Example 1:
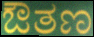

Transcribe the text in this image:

ಔತಣ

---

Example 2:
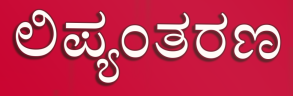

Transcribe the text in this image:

ಲಿಪ್ಯಂತರಣ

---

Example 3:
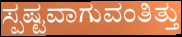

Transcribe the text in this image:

ಸ್ಪಷ್ಟವಾಗುವಂತಿತ್ತು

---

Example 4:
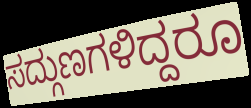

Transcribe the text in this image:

ಸದ್ಗುಣಗಳಿದ್ದರೂ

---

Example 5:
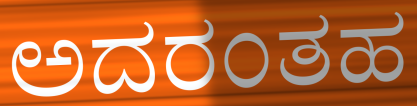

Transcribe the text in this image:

ಅದರಂತಹ